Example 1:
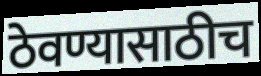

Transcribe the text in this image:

ठेवण्यासाठीच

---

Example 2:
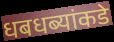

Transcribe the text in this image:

धबधब्यांकडे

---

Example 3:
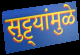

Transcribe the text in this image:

सुट्ट्यांमुळे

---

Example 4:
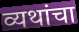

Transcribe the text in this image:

व्यथांचा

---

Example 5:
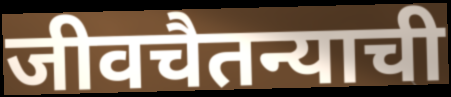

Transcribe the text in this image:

जीवचैतन्याची